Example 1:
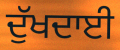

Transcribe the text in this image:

ਦੁੱਖਦਾਈ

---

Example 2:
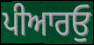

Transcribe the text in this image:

ਪੀਆਰਓੁ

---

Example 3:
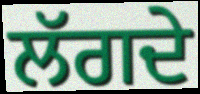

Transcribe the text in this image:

ਲੱਗਦੇ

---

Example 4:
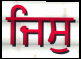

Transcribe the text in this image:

ਜਿਸੁ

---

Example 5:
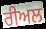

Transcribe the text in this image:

ਰੀਅਲ